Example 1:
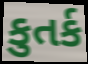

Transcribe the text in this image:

કુતર્ક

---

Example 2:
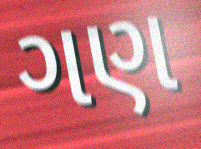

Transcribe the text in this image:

ગણ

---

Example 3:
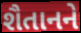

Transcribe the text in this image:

શૈતાનને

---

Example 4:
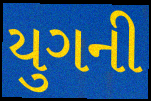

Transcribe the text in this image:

યુગની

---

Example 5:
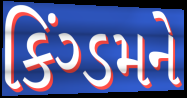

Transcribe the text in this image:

કિંગ્ડમને